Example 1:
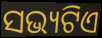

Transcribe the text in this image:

ସଭ୍ୟଟିଏ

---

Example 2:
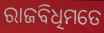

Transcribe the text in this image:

ରାଜବିଧିମତେ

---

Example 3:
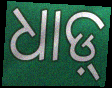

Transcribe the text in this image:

ଧାଡ଼୍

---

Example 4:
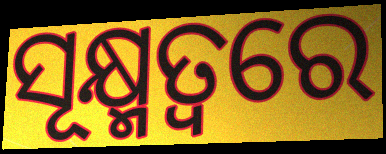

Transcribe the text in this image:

ସୂକ୍ଷ୍ମତ୍ୱରେ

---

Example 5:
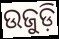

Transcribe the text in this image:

ଉଜୁଡ଼ି